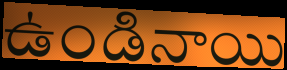
ఉండినాయి